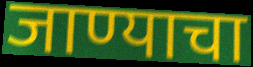
जाण्याचा